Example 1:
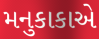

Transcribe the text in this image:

મનુકાકાએ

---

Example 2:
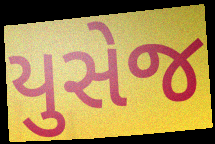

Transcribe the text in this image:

યુસેજ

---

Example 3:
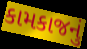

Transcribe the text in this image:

કામકાજનું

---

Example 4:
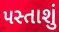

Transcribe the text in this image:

પસ્તાશું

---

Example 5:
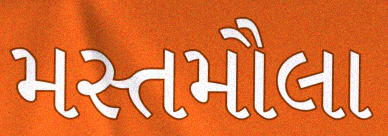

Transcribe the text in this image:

મસ્તમૌલા